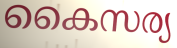
കൈസര്യ